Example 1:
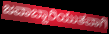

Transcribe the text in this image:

ಜವಾಬ್ದಾರಿಯುತವಾಗಿ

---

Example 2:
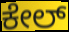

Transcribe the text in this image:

ಕೇಲ್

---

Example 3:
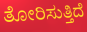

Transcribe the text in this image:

ತೋರಿಸುತ್ತಿದೆ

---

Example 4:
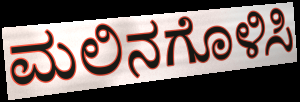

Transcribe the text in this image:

ಮಲಿನಗೊಳಿಸಿ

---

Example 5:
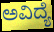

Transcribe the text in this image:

ಅವಿದ್ಯೆ